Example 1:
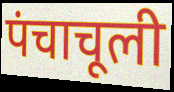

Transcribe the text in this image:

पंचाचूली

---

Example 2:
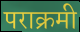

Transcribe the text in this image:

पराक्रमी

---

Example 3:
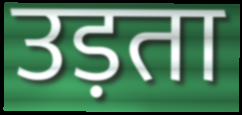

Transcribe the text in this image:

उड़ता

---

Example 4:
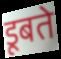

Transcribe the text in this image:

डूबते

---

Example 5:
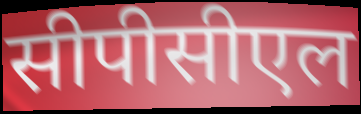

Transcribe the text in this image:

सीपीसीएल